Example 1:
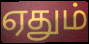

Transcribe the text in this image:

ஏதும்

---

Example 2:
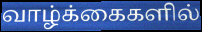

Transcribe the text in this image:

வாழ்க்கைகளில்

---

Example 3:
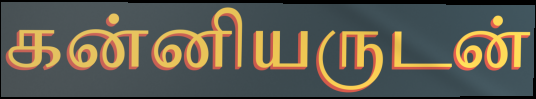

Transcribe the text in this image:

கன்னியருடன்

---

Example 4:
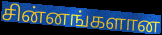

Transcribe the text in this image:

சின்னங்களான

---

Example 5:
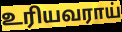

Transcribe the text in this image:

உரியவராய்